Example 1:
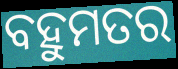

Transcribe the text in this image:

ବହୁମତର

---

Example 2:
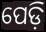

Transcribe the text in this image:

ପେଡ଼ି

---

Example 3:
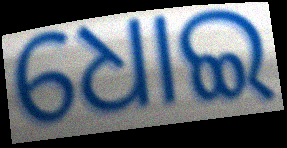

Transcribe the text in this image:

ଧୋଇ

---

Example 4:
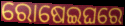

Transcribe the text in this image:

ରୋଷେଇଘରେ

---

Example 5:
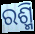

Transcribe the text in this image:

ରଶ୍ମି